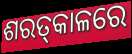
ଶରତ୍‌କାଳରେ